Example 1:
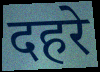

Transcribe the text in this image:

दहरे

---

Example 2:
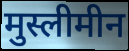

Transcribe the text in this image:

मुस्लीमीन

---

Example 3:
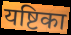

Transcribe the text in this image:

यष्टिका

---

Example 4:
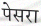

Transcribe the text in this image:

पेसरा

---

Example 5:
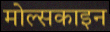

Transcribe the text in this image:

मोल्सकाइन